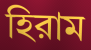
হিরাম